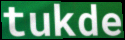
tukde